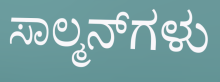
ಸಾಲ್ಮನ್‌ಗಳು